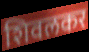
शिवलकर